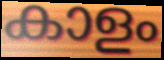
കാളം